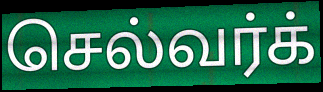
செல்வர்க்